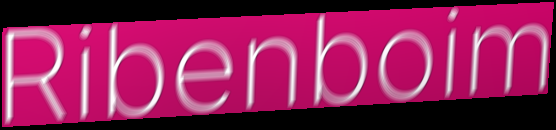
Ribenboim